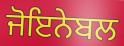
ਜੋਇਨੇਬਲ